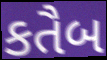
કતૈબ